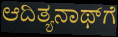
ಆದಿತ್ಯನಾಥ್‌ಗೆ